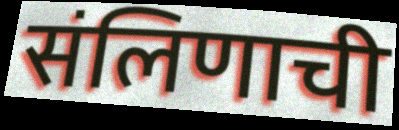
संलिणाची